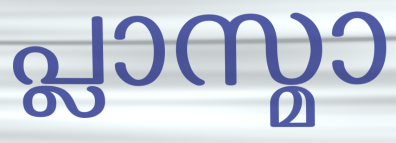
പ്ലാസ്മാ